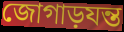
জোগাড়যন্ত